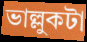
ভাল্লুকটা